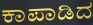
ಕಾಪಾಡಿದ